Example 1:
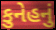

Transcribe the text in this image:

કુનેહનું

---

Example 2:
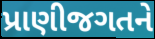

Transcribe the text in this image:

પ્રાણીજગતને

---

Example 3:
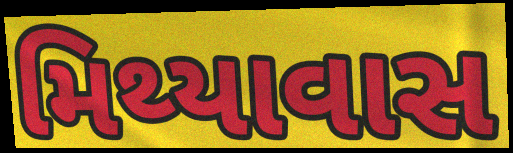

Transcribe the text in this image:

મિથ્યાવાસ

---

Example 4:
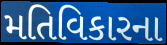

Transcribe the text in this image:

મતિવિકારના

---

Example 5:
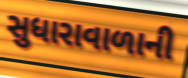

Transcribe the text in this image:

સુધારાવાળાની